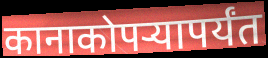
कानाकोपऱ्यापर्यंत